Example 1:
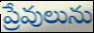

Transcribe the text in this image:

ప్రేవులును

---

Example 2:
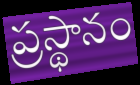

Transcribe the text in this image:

ప్రస్థానం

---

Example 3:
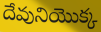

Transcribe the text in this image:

దేవునియొక్క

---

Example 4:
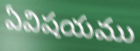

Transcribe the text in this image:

ఏవిషయము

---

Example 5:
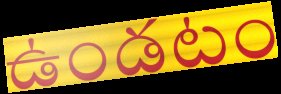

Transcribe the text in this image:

ఉండటం